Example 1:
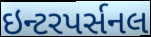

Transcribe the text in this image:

ઇન્ટરપર્સનલ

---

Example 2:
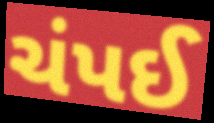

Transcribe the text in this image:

ચંપઈ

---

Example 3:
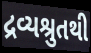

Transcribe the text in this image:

દ્રવ્યશ્રુતથી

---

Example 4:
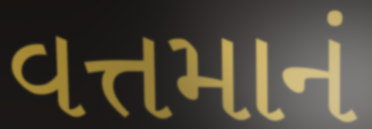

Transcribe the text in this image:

વત્તમાનં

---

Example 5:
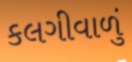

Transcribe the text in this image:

કલગીવાળું